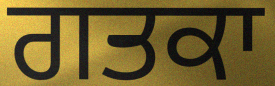
ਗਤਕਾ